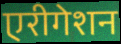
एरीगेशन